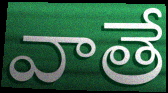
వాతే